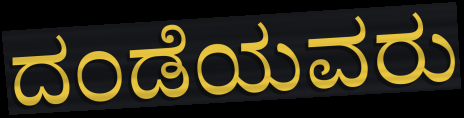
ದಂಡೆಯವರು